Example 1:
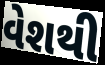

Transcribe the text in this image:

વેશથી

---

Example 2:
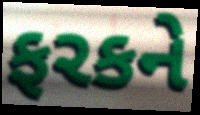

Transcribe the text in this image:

ફરકને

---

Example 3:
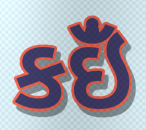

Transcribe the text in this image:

કઇઁં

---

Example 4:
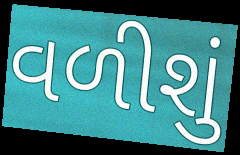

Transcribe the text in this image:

વળીશું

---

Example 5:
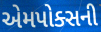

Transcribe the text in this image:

એમપોક્સની